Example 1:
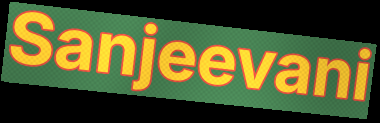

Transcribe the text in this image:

Sanjeevani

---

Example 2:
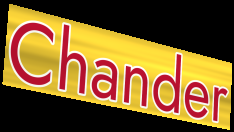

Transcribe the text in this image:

Chander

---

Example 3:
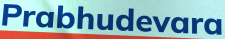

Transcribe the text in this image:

Prabhudevara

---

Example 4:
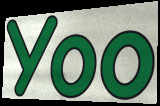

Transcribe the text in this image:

Yoo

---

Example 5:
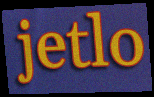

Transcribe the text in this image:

jetlo